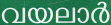
വയലാർ